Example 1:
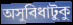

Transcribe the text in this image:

অসুবিধাটুকু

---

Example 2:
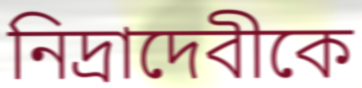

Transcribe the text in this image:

নিদ্রাদেবীকে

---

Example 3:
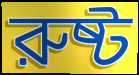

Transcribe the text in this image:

রুষ্ট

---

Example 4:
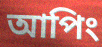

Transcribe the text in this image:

আপিং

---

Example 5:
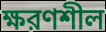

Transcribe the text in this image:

ক্ষরণশীল